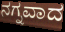
ನಗ್ನವಾದ